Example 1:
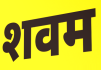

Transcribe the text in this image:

शवम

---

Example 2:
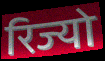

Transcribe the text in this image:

रिज्यो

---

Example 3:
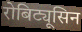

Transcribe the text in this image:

रोबिट्यूसिन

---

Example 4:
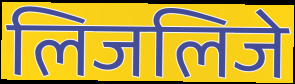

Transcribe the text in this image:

लिजलिजे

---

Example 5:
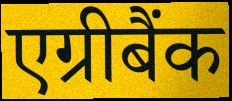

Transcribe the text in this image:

एग्रीबैंक